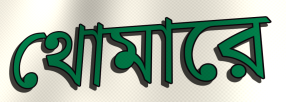
থোমারে